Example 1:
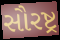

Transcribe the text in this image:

સૌરષ્ટ્ર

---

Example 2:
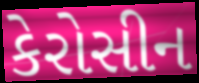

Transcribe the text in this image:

કેરોસીન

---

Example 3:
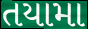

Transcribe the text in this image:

તયામા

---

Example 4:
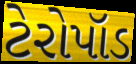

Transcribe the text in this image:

ટેરોપૉડ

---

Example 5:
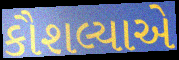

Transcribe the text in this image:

કૌશલ્યાએ